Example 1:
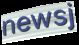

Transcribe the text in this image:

newsj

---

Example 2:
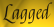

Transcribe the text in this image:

Lagged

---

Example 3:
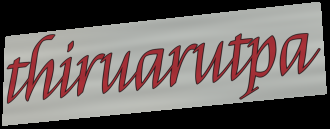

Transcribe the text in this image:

thiruarutpa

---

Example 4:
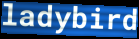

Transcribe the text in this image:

ladybird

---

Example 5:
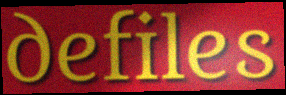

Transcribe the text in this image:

defiles